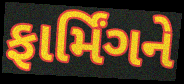
ફાર્મિંગને